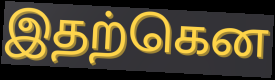
இதற்கென